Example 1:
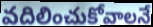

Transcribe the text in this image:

వదిలించుకోవాలనే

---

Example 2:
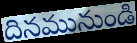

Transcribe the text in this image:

దినమునుండి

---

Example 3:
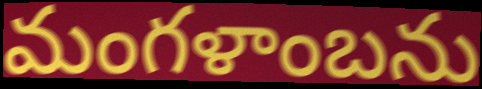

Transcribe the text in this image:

మంగళాంబను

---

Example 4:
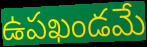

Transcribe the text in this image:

ఉపఖండమే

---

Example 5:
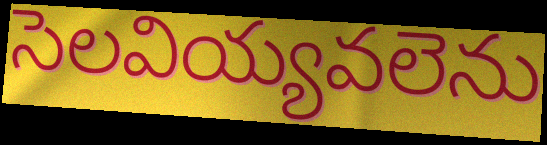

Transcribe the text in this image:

సెలవియ్యవలెను